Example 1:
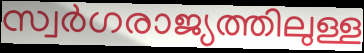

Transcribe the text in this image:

സ്വർഗരാജ്യത്തിലുള്ള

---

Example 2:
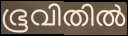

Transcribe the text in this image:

ഭൂവിതിൽ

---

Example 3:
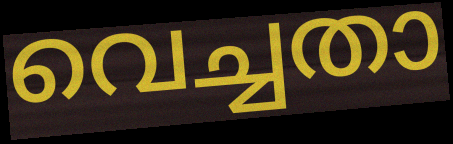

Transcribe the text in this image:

വെച്ചതാ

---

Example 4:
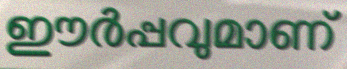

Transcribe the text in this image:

ഈർപ്പവുമാണ്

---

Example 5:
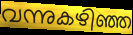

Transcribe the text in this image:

വന്നുകഴിഞ്ഞ